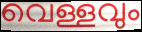
വെള്ളവും